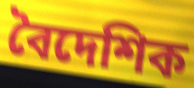
বৈদেশিক